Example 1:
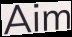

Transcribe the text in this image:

Aim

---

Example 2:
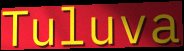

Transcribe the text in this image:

Tuluva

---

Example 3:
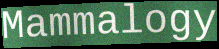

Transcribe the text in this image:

Mammalogy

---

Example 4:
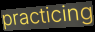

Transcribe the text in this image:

practicing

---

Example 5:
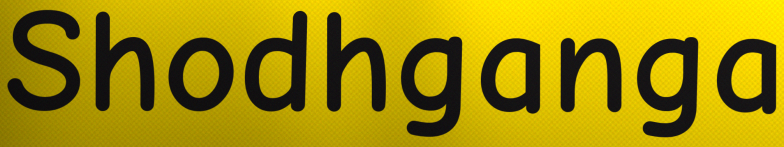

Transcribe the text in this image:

Shodhganga